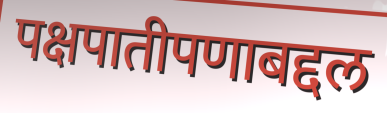
पक्षपातीपणाबद्दल